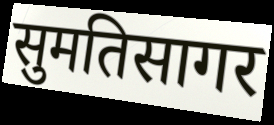
सुमतिसागर